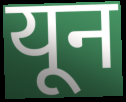
यून